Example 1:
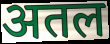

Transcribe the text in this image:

अतल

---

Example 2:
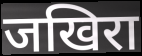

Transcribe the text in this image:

जखिरा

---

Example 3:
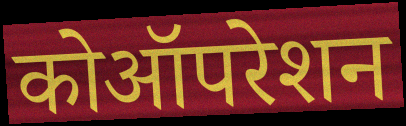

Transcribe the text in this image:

कोऑपरेशन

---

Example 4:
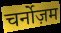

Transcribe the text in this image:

चर्नोज़म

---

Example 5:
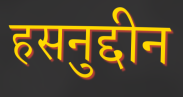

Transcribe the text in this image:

हसनुद्दीन